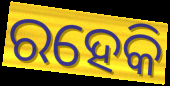
ରହେକି